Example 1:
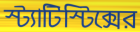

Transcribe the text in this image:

স্ট্যাটিস্টিক্সের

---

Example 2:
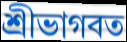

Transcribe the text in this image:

শ্রীভাগবত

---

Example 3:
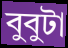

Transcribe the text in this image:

বুবুটা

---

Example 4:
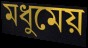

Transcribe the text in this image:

মধুমেয়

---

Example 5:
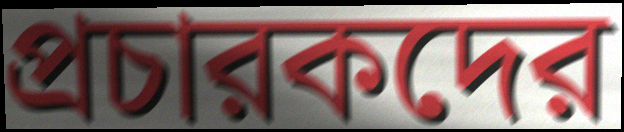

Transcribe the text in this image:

প্রচারকদের